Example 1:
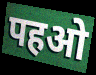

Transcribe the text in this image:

पहओ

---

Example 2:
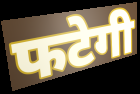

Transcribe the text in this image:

फटेगी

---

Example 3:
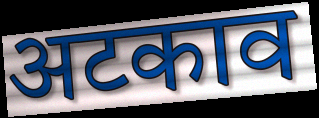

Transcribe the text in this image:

अटकाव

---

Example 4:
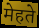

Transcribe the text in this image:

मेहते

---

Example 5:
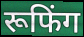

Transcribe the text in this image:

रूफिंग